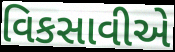
વિકસાવીએ